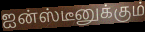
ஐன்ஸ்டீனுக்கும்